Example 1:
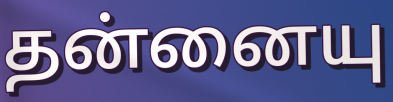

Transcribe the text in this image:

தன்னையு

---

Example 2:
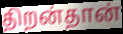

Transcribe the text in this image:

திறன்தான்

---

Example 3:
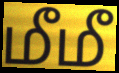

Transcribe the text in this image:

மீமீ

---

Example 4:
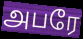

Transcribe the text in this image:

அபரே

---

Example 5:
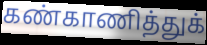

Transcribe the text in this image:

கண்காணித்துக்